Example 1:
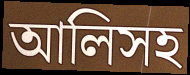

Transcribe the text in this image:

আলিসহ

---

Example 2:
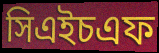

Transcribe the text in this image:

সিএইচএফ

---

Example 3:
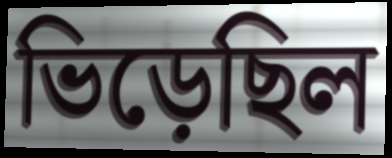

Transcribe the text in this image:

ভিড়েছিল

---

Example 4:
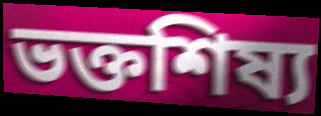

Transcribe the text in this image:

ভক্তশিষ্য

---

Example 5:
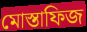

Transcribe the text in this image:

মোস্তাফিজ